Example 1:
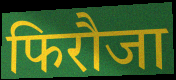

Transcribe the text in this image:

फिरौजा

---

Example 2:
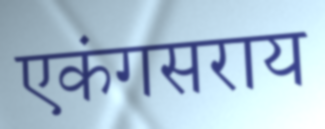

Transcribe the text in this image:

एकंगसराय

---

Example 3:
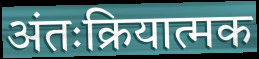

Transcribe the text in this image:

अंतःक्रियात्मक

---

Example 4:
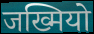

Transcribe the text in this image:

जख्मियो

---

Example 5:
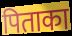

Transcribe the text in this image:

पिताका